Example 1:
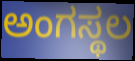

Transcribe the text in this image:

ಅಂಗಸ್ಥಲ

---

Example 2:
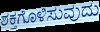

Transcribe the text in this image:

ಶಕ್ತಗೊಳಿಸುವುದು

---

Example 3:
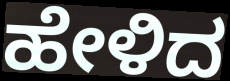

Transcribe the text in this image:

ಹೇಳಿದ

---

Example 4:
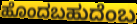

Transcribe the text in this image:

ಹೊಂದಬಹುದೆಂಬ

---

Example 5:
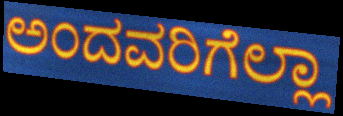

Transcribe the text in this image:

ಅಂದವರಿಗೆಲ್ಲಾ